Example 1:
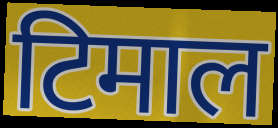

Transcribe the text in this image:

टिमाल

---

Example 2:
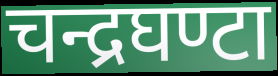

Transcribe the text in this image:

चन्द्रघण्टा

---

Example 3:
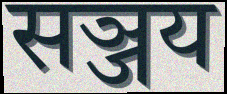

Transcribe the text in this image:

सञ्जय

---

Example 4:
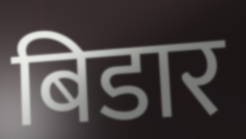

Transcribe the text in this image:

बिडार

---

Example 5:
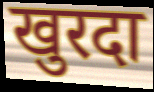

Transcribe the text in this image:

खुरदा